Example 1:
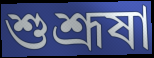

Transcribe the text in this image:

শুশ্রূষা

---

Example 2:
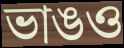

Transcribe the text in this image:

ভাঙও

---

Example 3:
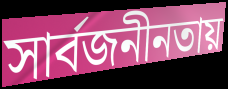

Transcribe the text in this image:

সার্বজনীনতায়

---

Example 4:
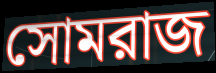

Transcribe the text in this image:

সোমরাজ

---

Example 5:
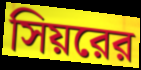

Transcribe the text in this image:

সিয়রের